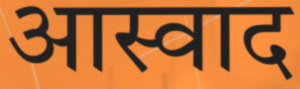
आस्वाद